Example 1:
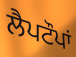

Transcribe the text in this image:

ਲੈਪਟੌਪਾਂ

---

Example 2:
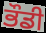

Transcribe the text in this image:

ਭੌਡੀ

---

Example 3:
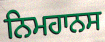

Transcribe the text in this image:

ਨਿਮਹਾਨਸ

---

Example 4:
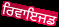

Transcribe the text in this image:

ਰਿਵਾਇਜਡ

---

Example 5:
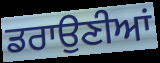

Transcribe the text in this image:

ਡਰਾਉਣੀਆਂ